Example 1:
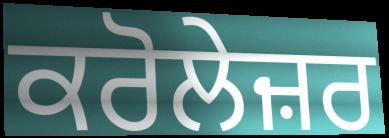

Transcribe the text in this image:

ਕਰੋਲੇਜ਼ਰ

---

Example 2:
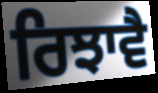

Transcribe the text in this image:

ਰਿਝਾਵੈ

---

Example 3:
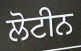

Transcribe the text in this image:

ਲੋਟੀਨ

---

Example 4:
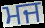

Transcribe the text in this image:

ਮਜ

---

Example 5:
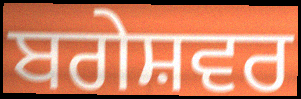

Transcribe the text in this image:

ਬਗੇਸ਼ਵਰ